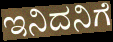
ಇನಿದನಿಗೆ